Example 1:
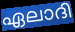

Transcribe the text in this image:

ഏലാദി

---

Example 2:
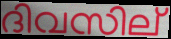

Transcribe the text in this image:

ദിവസില്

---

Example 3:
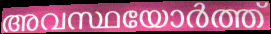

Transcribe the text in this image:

അവസ്ഥയോർത്ത്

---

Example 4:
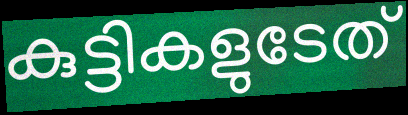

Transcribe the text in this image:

കുട്ടികളുടേത്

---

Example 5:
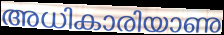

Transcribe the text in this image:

അധികാരിയാണു